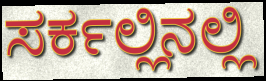
ಸರ್ಕಲ್ಲಿನಲ್ಲಿ